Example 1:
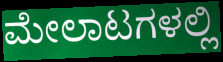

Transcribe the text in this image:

ಮೇಲಾಟಗಳಲ್ಲಿ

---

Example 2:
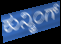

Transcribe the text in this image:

ಕುನ್ಮಿಂಗ್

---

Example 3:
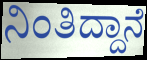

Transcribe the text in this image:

ನಿಂತಿದ್ದಾನೆ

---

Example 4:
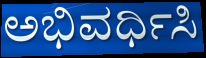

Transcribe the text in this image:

ಅಭಿವರ್ಧಿಸಿ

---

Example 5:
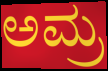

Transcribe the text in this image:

ಅಮ್ರ